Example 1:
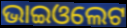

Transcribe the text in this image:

ଭାଇଓଲେଟ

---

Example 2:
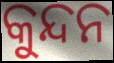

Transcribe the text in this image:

କୁନ୍ଦନ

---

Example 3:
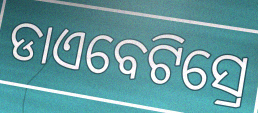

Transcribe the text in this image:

ଡାଏବେଟିସ୍ରେ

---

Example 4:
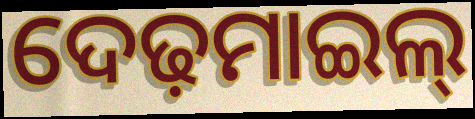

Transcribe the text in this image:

ଦେଢ଼ମାଇଲ୍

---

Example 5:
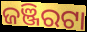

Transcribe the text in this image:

ଜଞ୍ଜିରଟା